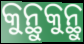
କୁନ୍ଥୁକୁନ୍ଥୁ